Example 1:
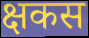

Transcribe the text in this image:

क्षकस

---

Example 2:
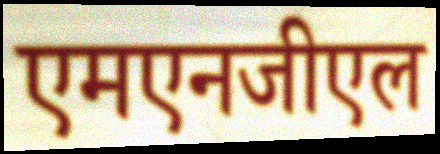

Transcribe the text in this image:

एमएनजीएल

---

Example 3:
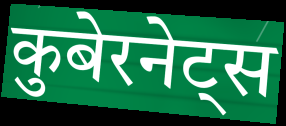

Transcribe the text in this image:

कुबेरनेट्स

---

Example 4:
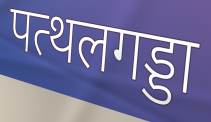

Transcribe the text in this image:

पत्थलगड्डा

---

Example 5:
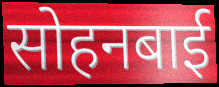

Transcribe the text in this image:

सोहनबाई